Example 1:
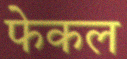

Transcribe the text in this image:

फेकल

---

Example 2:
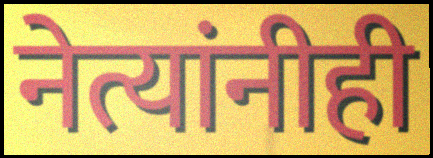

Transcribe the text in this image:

नेत्यांनीही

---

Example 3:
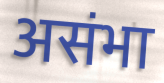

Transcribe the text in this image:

असंभा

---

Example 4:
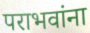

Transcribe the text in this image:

पराभवांना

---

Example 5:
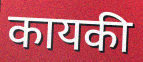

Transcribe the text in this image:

कायकी